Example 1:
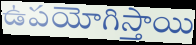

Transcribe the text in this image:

ఉపయోగిస్తాయి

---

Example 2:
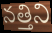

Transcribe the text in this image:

నత్తిని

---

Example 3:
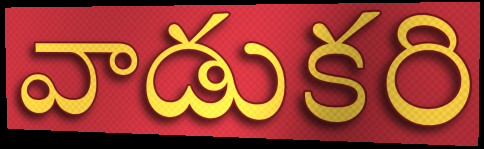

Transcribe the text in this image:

వాడుకరి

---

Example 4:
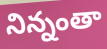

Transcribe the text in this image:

నిన్నంతా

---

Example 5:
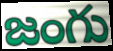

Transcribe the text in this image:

జంగు